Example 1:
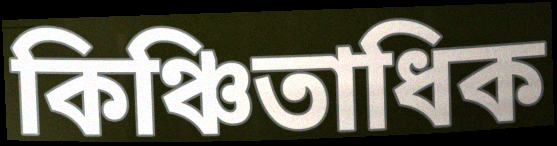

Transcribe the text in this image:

কিঞ্চিতাধিক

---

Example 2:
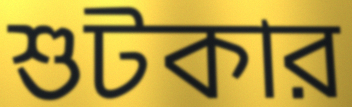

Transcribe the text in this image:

শুটকার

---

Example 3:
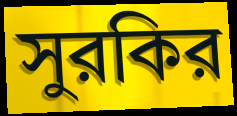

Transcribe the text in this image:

সুরকির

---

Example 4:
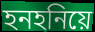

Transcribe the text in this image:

হনহনিয়ে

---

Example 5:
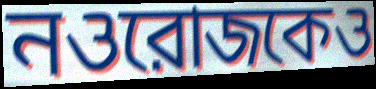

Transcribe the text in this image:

নওরোজকেও